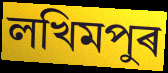
লখিমপুৰ